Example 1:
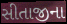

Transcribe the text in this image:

સીતાજીના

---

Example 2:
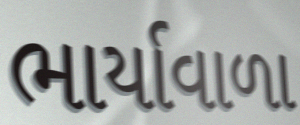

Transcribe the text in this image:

ભાર્યાવાળા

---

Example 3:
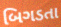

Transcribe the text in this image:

બિગડતા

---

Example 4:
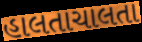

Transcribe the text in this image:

હાલતાચાલતા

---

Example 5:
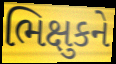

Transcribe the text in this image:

ભિક્ષુકને